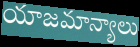
యాజమాన్యాలు